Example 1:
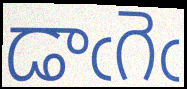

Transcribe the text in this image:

డాఁగెఁ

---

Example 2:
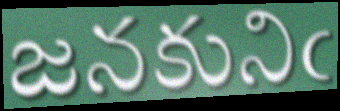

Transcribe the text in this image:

జనకునిఁ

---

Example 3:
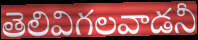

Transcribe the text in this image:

తెలివిగలవాడనీ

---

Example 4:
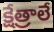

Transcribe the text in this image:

క్షేత్రాలే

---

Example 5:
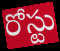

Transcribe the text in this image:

రోస్టు